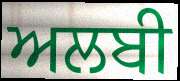
ਅਲਬੀ